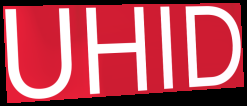
UHID